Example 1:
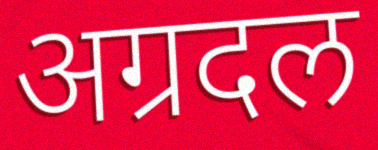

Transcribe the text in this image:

अग्रदल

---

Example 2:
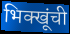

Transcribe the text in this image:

भिक्खूंची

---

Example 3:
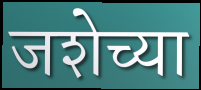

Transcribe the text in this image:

जशेच्या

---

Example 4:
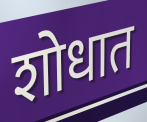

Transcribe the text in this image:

शोधात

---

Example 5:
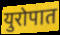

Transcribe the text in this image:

युरोपात